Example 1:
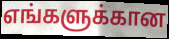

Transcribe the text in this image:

எங்களுக்கான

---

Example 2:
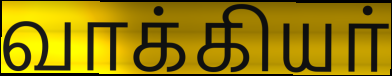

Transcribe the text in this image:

வாக்கியர்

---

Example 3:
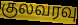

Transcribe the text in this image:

குலவரவு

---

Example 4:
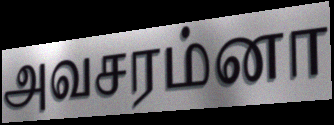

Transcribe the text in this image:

அவசரம்னா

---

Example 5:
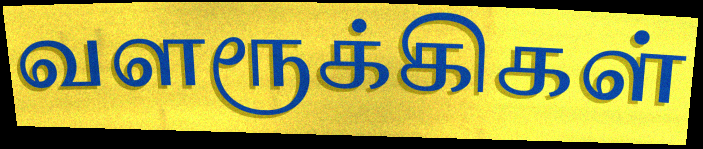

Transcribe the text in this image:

வளரூக்கிகள்